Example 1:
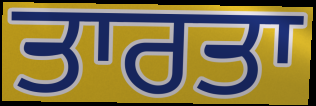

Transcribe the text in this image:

ਤਾਰਤਾ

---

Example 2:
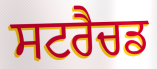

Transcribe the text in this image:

ਸਟਰੈਚਡ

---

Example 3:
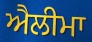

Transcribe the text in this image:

ਐਲੀਮਾ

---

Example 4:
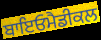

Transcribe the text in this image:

ਬਾਇਓਮੈਡੀਕਲ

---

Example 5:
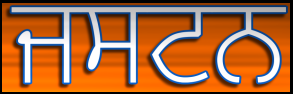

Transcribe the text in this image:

ਜਸਟਨ